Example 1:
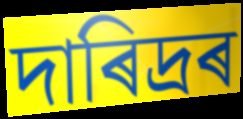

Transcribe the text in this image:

দাৰিদ্ৰৰ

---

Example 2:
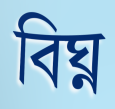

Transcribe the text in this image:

বিঘ্ন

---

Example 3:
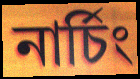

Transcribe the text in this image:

নাৰ্চিং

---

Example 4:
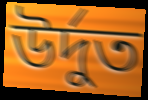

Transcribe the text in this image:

উৰ্দুত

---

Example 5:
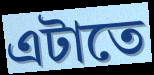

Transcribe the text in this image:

এটাতে